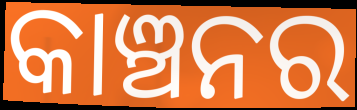
କାଞ୍ଚନର